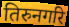
तिरुनगरि